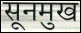
सूनमुख